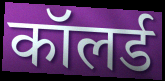
कॉलर्ड